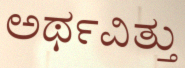
ಅರ್ಥವಿತ್ತು